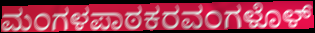
ಮಂಗಳಪಾಠಕರವಂಗಳೊಳ್